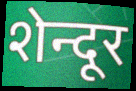
शेन्दूर